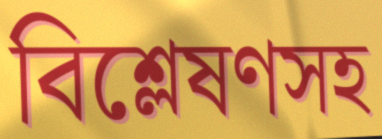
বিশ্লেষণসহ